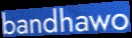
bandhawo